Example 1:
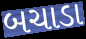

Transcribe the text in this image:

બચાડા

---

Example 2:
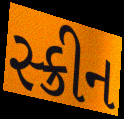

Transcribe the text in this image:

સ્ક્રીન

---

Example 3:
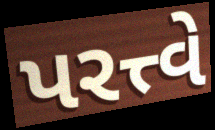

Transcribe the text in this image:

પરત્ત્વે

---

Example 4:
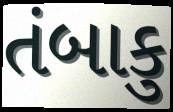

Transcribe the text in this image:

તંબાકુ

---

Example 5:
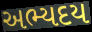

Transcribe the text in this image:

અભ્યદય